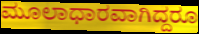
ಮೂಲಾಧಾರವಾಗಿದ್ದರೂ